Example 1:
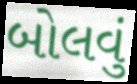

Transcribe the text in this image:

બોલવું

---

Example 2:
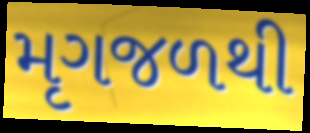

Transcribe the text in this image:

મૃગજળથી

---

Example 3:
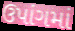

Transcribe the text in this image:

ઉપાંગમાં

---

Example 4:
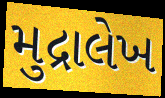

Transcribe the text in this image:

મુદ્રાલેખ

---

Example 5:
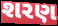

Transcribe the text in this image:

શરણ